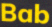
Bab